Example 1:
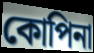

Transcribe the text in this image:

কোপিনা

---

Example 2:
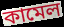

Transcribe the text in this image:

কামেল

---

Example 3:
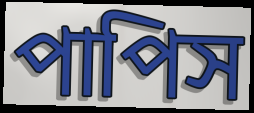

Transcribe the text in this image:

পাপিস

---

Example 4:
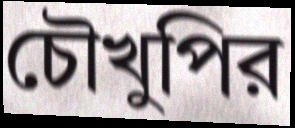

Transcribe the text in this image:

চৌখুপির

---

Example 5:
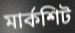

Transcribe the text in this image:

মার্কশিট